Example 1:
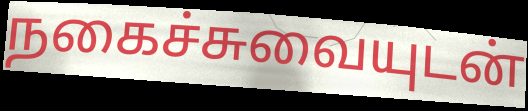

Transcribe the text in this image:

நகைச்சுவையுடன்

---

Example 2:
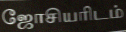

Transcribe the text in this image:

ஜோசியரிடம்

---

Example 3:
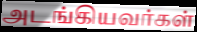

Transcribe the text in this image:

அடங்கியவர்கள்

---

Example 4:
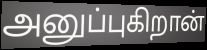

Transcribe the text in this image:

அனுப்புகிறான்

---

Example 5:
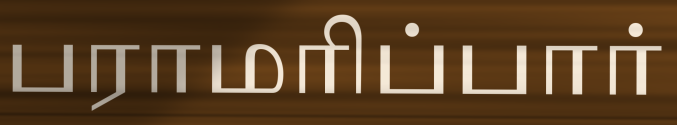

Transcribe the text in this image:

பராமரிப்பார்